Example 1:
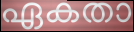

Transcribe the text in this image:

ഏകതാ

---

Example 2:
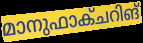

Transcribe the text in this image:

മാനുഫാക്ചറിങ്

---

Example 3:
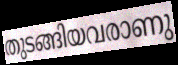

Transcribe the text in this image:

തുടങ്ങിയവരാണു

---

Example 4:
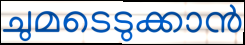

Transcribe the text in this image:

ചുമടെടുക്കാൻ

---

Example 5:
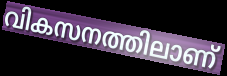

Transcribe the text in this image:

വികസനത്തിലാണ്